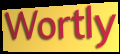
Wortly